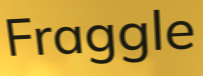
Fraggle